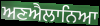
ਅਣਐਲਾਨਿਆ